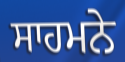
ਸਾਹਮਨੇ